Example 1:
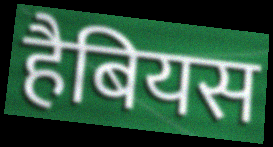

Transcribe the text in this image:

हैबियस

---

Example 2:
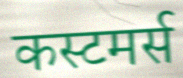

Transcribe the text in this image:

कस्टमर्स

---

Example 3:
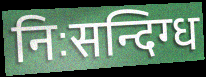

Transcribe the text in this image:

निःसन्दिग्ध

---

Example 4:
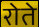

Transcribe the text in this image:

रोते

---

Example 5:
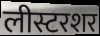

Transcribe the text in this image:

लीस्टरशर